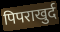
पिपराखुर्द